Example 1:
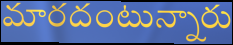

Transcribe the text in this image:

మారదంటున్నారు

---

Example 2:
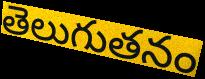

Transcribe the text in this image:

తెలుగుతనం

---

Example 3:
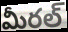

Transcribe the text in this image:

మీరల్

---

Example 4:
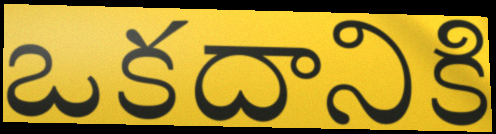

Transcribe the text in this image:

ఒకదానికి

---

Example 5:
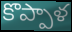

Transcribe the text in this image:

కొప్పాళ